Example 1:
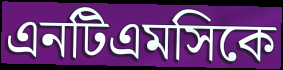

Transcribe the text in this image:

এনটিএমসিকে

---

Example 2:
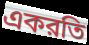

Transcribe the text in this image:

একরতি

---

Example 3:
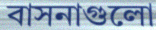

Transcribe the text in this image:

বাসনাগুলো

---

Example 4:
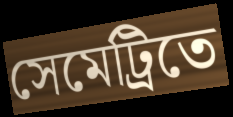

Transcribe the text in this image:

সেমেট্রিতে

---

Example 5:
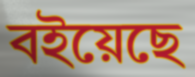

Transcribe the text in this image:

বইয়েছে